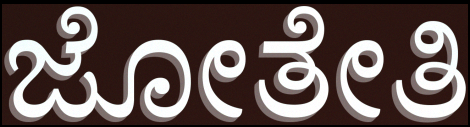
ಜೋತೇತಿ